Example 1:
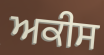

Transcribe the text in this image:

ਅਕੀਸ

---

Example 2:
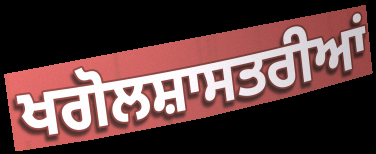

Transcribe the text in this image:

ਖਗੋਲਸ਼ਾਸਤਰੀਆਂ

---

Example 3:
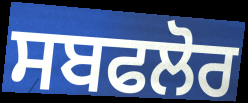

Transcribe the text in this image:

ਸਬਫਲੋਰ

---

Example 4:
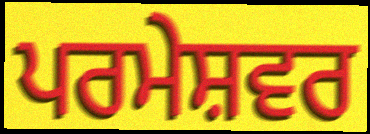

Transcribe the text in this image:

ਪਰਮੇਸ਼ਵਰ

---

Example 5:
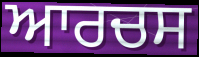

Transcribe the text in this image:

ਆਰਚਸ